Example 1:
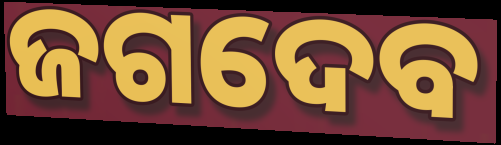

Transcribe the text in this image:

ଜଗଦେବ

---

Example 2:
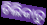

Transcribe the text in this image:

ଚିଲିକାରୁ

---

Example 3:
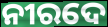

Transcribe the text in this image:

ନୀରଦେ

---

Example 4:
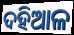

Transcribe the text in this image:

ଦହିଆଳ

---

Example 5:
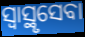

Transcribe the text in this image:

ସ୍ୱାସ୍ଥୃସେବା